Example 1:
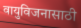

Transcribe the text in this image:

वायुविजनासाठी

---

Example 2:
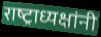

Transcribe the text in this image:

राष्ट्राध्यक्षांनी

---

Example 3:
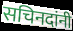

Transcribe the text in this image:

सचिनदांनी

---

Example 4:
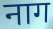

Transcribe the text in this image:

नाग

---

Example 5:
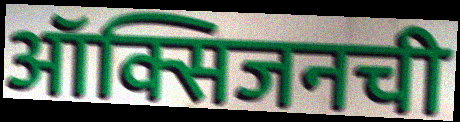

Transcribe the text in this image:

ऑक्सिजनची